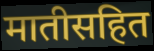
मातीसहित